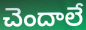
చెందాలే